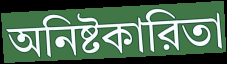
অনিষ্টকারিতা